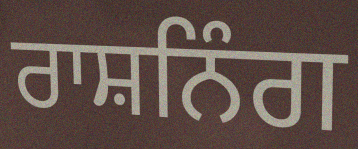
ਰਾਸ਼ਨਿੰਗ